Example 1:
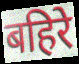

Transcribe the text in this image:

बहिरे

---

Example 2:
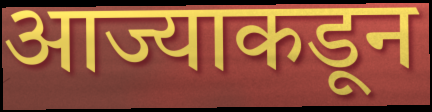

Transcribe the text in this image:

आज्याकडून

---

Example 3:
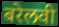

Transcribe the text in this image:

बरेलवी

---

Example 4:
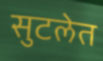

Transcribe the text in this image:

सुटलेत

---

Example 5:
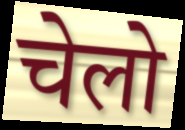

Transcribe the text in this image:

चेलो